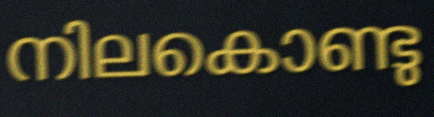
നിലകൊണ്ടു